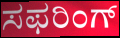
ಸಫರಿಂಗ್